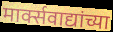
मार्क्सवाद्यांच्या